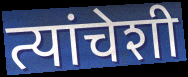
त्यांचेशी